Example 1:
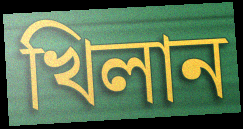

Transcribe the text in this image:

খিলান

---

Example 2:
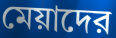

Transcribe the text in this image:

মেয়াদের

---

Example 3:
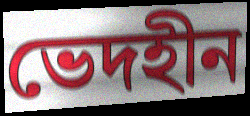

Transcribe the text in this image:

ভেদহীন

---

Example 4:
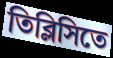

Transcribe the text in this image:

তিব্লিসিতে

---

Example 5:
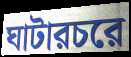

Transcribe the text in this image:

ঘাটারচরে